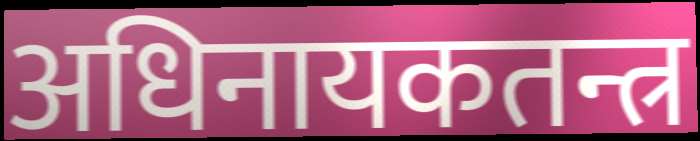
अधिनायकतन्त्र